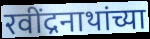
रवींद्रनाथांच्या